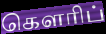
கௌரிப்